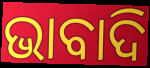
ଭାବାଦି